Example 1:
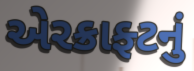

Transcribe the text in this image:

એરક્રાફ્ટનું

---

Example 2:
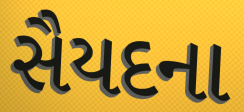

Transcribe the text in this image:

સૈયદના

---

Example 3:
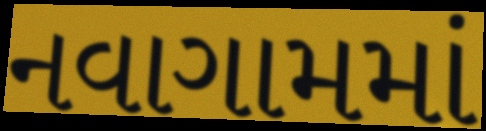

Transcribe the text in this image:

નવાગામમાં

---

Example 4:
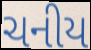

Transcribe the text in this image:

ચનીય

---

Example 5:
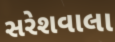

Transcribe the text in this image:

સરેશવાલા